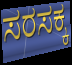
ಸರಸಕ್ಕ